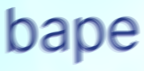
bape